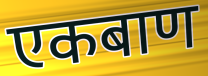
एकबाण